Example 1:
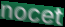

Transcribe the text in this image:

nocet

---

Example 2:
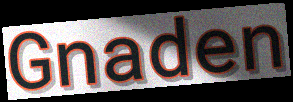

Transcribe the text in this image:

Gnaden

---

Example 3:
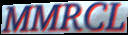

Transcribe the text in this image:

MMRCL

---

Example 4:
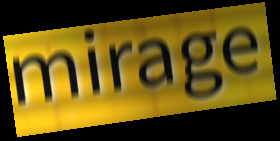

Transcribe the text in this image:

mirage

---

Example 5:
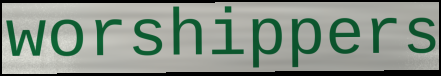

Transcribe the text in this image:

worshippers